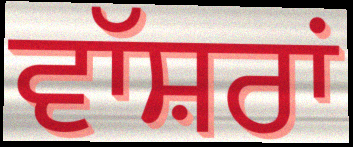
ਵਾੱਸ਼ਰਾਂ